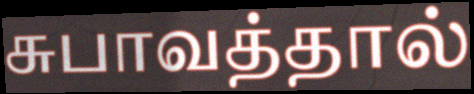
சுபாவத்தால்